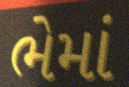
ભેમાં